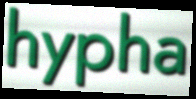
hypha